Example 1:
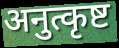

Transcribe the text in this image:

अनुत्कृष्ट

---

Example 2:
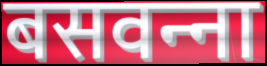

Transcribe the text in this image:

बसवन्ना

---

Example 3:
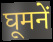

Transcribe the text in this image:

घूमनें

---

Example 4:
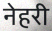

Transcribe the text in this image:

नेहरी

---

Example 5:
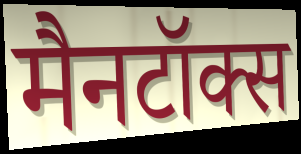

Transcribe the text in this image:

मैनटॉक्स